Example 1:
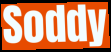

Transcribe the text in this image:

Soddy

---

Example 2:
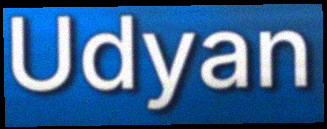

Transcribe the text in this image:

Udyan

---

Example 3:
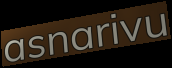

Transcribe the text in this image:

asnarivu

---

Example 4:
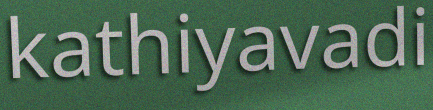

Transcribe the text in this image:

kathiyavadi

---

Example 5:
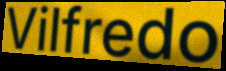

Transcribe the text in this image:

Vilfredo